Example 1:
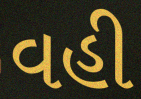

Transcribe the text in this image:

વહી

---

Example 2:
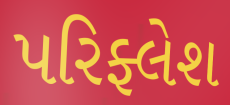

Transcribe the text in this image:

પરિફ્લેશ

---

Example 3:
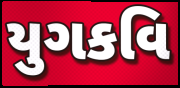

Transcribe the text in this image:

યુગકવિ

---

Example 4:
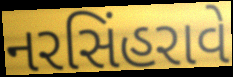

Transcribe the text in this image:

નરસિંહરાવે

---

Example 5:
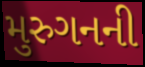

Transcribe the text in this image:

મુરુગનની